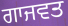
ਗਾਜਵਤ